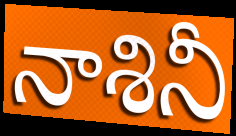
నాశినీ